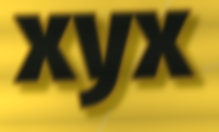
xyx